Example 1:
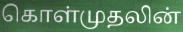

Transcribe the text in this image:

கொள்முதலின்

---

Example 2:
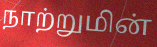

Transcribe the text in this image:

நாற்றுமின்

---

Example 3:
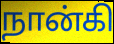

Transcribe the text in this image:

நான்கி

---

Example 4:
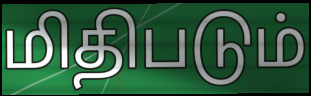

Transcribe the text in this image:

மிதிபடும்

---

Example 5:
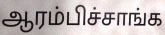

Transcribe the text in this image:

ஆரம்பிச்சாங்க